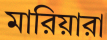
মারিয়ারা